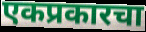
एकप्रकारचा